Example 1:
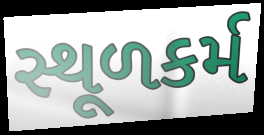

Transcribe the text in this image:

સ્થૂળકર્મ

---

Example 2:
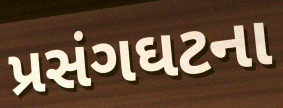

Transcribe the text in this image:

પ્રસંગઘટના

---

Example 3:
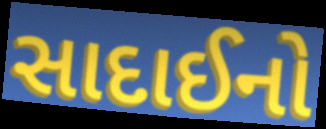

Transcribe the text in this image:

સાદાઈનો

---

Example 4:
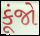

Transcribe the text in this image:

કૂંજો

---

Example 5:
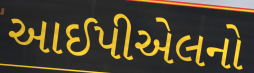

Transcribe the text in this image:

આઈપીએલનો